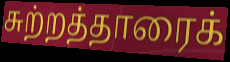
சுற்றத்தாரைக்